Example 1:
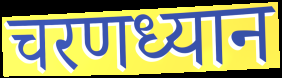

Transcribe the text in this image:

चरणध्यान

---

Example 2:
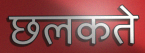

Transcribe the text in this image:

छलकते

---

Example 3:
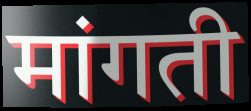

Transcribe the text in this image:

मांगती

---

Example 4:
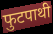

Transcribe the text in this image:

फुटपाथी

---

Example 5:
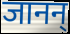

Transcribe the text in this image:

जानन्